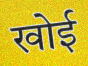
खोई